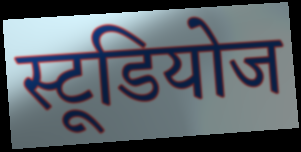
स्टूडियोज